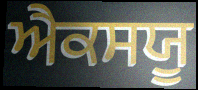
ਐਕਸਯੂ